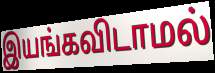
இயங்கவிடாமல்